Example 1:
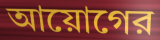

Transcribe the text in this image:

আয়োগের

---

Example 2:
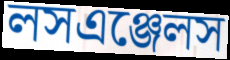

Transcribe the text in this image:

লসএঞ্জেলস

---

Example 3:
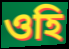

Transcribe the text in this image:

ওহি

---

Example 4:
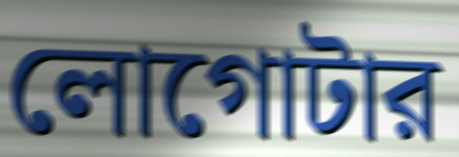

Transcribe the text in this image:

লোগোটার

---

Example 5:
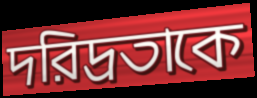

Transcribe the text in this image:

দরিদ্রতাকে